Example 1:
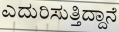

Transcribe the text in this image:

ಎದುರಿಸುತ್ತಿದ್ದಾನೆ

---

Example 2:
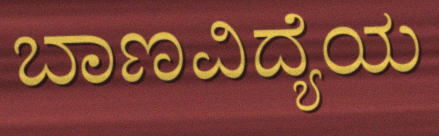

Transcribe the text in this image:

ಬಾಣವಿದ್ಯೆಯ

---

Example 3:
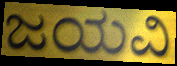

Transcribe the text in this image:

ಜಯವಿ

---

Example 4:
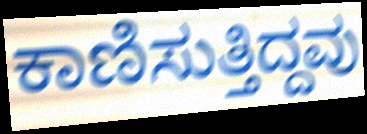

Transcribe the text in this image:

ಕಾಣಿಸುತ್ತಿದ್ದವು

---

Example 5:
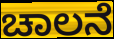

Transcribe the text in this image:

ಚಾಲನೆ